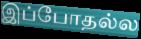
இப்போதல்ல